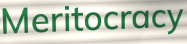
Meritocracy